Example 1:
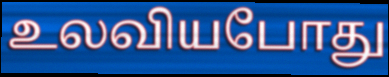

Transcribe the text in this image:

உலவியபோது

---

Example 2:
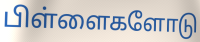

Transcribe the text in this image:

பிள்ளைகளோடு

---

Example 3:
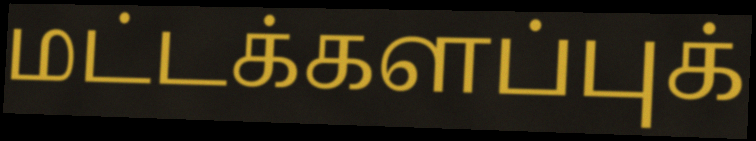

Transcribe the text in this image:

மட்டக்களப்புக்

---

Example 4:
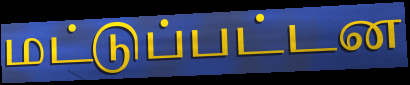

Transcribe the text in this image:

மட்டுப்பட்டன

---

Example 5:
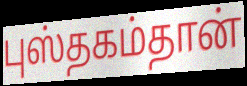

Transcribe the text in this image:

புஸ்தகம்தான்